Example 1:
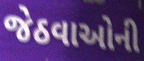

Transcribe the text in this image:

જેઠવાઓની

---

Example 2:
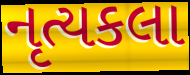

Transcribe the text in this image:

નૃત્યકલા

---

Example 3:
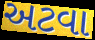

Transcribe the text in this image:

અટવા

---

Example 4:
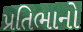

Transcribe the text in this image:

પ્રતિભાનો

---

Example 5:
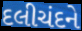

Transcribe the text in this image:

દલીચંદને